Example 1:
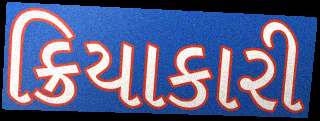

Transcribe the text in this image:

ક્રિયાકારી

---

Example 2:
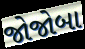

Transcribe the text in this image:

જોજોબા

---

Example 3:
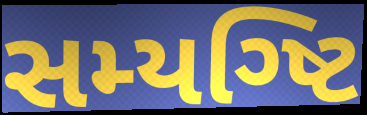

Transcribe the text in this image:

સમ્યગ્ષ્ટિ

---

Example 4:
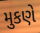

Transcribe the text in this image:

મુકણે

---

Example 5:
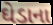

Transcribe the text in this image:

ઘેડાના